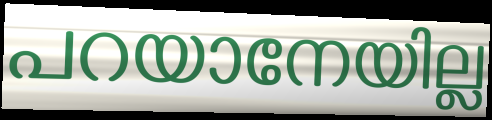
പറയാനേയില്ല